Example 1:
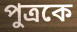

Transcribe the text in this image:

পুত্রকে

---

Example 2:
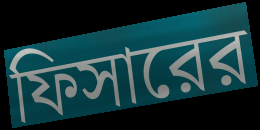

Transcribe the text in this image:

ফিসারের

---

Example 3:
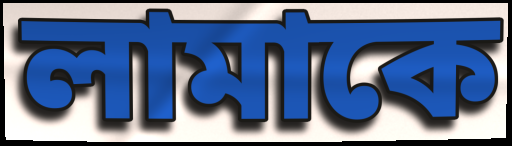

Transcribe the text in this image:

লামাকে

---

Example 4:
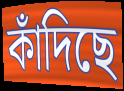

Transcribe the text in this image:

কাঁদিছে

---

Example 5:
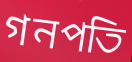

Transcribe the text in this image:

গনপতি